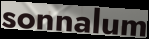
sonnalum